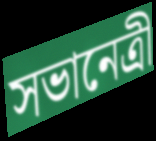
সভানেত্ৰী